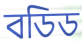
বডিড